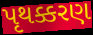
પૃથક્કરણ